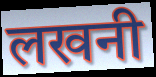
लखनी